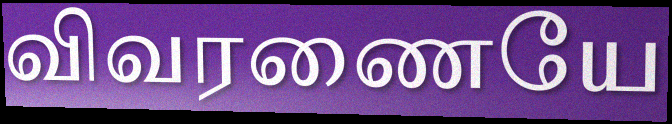
விவரணையே